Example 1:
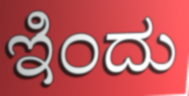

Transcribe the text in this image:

ಇಿಂದು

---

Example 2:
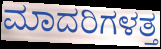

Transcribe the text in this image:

ಮಾದರಿಗಳತ್ತ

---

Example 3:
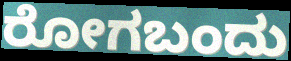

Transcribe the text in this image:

ರೋಗಬಂದು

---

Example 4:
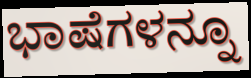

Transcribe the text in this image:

ಭಾಷೆಗಳನ್ನೂ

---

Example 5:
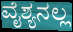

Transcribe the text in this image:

ವೈಶ್ಯನಲ್ಲ